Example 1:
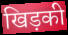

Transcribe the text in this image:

खिड़की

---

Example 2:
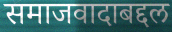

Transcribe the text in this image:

समाजवादाबद्दल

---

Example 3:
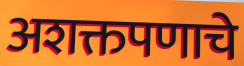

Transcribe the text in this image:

अशक्तपणाचे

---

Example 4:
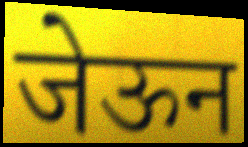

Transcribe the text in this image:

जेऊन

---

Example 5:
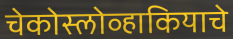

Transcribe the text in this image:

चेकोस्लोव्हाकियाचे